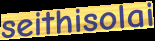
seithisolai